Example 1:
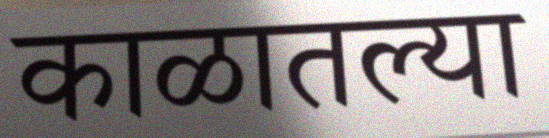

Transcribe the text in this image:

काळातल्या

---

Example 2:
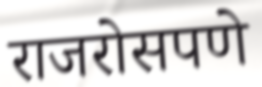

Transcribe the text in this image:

राजरोसपणे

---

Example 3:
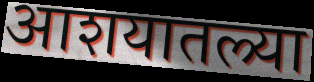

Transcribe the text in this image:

आशयातल्या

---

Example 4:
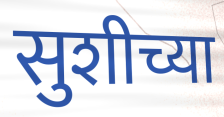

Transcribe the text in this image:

सुशीच्या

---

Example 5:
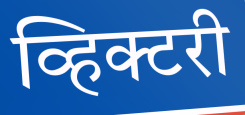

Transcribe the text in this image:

व्हिक्टरी